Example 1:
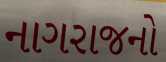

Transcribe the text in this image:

નાગરાજનો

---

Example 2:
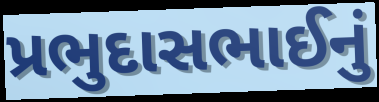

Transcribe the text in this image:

પ્રભુદાસભાઈનું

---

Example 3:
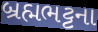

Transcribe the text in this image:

બ્રહ્મભટ્ટના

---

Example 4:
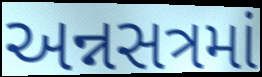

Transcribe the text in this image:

અન્નસત્રમાં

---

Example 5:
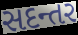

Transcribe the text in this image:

સદન્તર